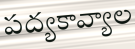
పద్యకావ్యాల